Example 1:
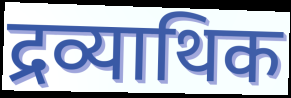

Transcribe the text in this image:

द्रव्याथिक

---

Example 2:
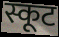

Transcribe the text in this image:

स्कूट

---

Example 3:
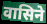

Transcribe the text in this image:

वासिने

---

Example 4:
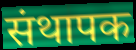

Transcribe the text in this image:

संथापक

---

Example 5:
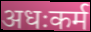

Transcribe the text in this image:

अधःकर्म